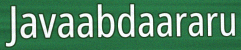
Javaabdaararu